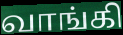
வாங்கி